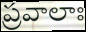
ప్రవాలాః